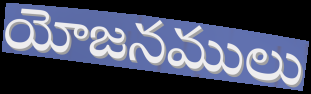
యోజనములు